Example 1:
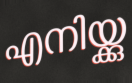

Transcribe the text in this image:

എനിയ്ക്കു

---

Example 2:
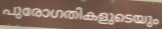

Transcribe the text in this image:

പുരോഗതികളുടെയും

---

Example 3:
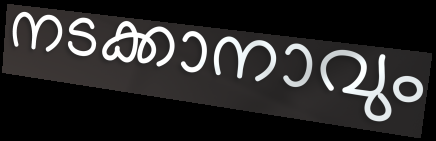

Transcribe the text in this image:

നടക്കാനാവും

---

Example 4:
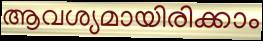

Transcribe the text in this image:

ആവശ്യമായിരിക്കാം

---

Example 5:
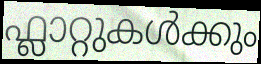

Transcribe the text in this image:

ഫ്ലാറ്റുകൾക്കും